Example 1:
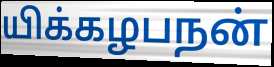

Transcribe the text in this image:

யிக்கழபநன்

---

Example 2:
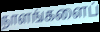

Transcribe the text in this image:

நாளங்களைப்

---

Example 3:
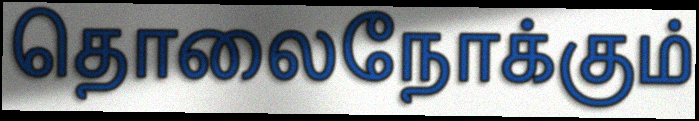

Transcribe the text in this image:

தொலைநோக்கும்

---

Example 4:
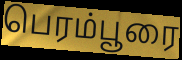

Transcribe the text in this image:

பெரம்பூரை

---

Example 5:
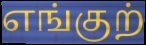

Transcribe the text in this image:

எங்குற்